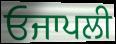
ਓਜਾਪਲੀ